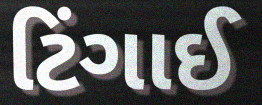
ટિંગાઈ